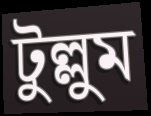
টুল্লুম